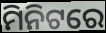
ମିନିଟରେ